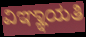
ವಿಞ್ಞಾಯತಿ